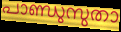
പാണ്ഡുസുതാ